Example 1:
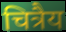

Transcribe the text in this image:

चित्रैय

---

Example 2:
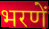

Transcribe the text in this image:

भरणें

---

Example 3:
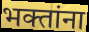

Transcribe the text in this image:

भक्तांना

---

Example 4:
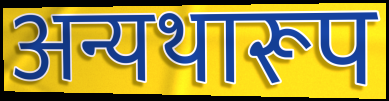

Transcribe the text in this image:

अन्यथारूप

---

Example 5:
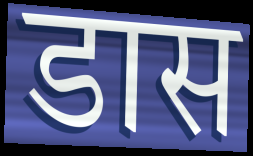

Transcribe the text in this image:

डास